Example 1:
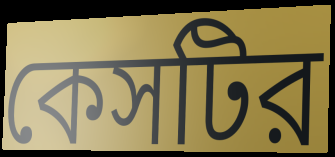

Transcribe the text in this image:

কেসটির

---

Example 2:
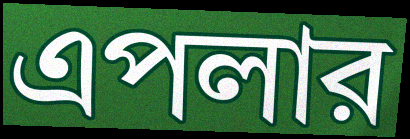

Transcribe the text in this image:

এপলার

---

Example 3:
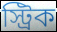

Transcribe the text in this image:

স্ট্রিক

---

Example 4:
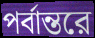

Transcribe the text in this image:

পর্বান্তরে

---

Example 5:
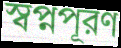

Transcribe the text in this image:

স্বপ্নপূরণ